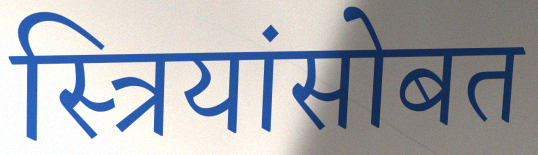
स्त्रियांसोबत